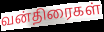
வன்திரைகள்